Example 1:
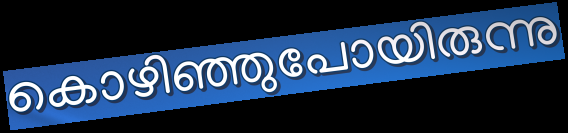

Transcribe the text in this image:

കൊഴിഞ്ഞുപോയിരുന്നു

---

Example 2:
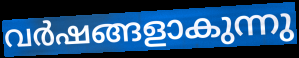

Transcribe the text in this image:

വർഷങ്ങളാകുന്നു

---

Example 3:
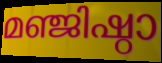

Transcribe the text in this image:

മഞ്ജിഷ്ഠാ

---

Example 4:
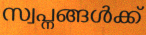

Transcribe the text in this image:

സ്വപ്നങ്ങൾക്ക്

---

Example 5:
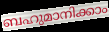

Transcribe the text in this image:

ബഹുമാനിക്കാം